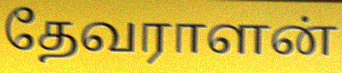
தேவராளன்